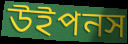
উইপনস